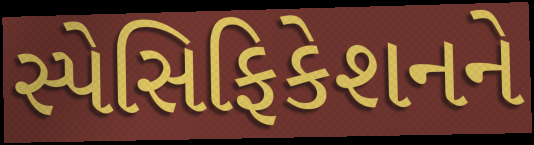
સ્પેસિફિકેશનને